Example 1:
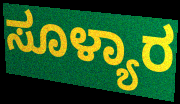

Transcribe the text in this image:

ಸೂಳ್ಯಾರ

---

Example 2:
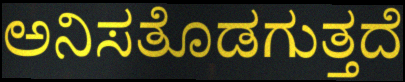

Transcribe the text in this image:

ಅನಿಸತೊಡಗುತ್ತದೆ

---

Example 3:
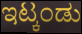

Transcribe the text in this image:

ಇಟ್ಕಂಡು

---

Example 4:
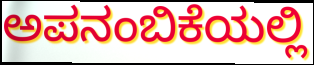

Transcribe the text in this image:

ಅಪನಂಬಿಕೆಯಲ್ಲಿ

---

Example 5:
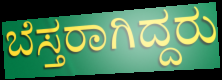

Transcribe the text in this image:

ಬೆಸ್ತರಾಗಿದ್ದರು